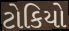
ટોકિયો